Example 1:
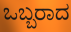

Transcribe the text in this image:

ಒಬ್ಬರಾದ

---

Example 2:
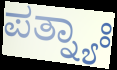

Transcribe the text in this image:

ಪತ್ನ್ಯಾಃ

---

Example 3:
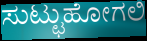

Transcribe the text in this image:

ಸುಟ್ಟುಹೋಗಲಿ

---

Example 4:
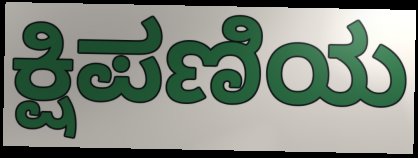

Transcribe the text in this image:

ಕ್ಷಿಪಣಿಯ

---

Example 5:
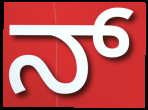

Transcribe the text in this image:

ನ್